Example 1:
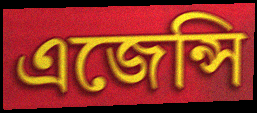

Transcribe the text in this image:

এজেন্সি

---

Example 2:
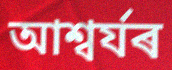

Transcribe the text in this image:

আশ্বৰ্যৰ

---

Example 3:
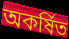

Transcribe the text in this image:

অকৰ্ষিত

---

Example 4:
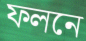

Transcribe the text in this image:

ফলনে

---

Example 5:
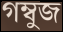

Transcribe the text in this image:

গম্বুজ